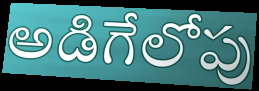
అడిగేలోపు